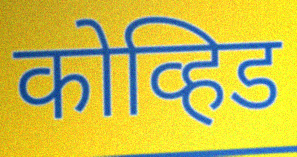
कोव्हिड